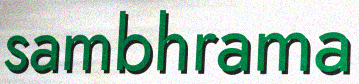
sambhrama